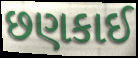
છણકાઈ